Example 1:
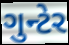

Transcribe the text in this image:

ગુન્ટેર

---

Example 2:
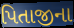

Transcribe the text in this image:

પિતાજીના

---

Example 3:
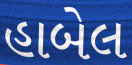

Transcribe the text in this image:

હાબેલ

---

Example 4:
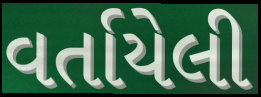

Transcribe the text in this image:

વર્તાયેલી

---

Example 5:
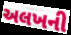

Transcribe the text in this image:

અલખની